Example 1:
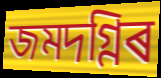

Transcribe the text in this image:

জমদগ্নিৰ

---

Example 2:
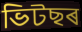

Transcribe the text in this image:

ভিটছৰ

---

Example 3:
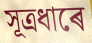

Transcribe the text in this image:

সূত্ৰধাৰে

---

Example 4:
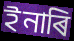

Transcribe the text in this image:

ইনাৰি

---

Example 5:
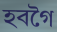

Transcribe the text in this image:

হবগৈ